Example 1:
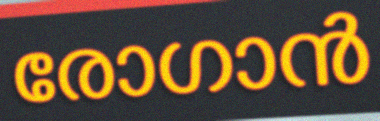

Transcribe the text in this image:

രോഗാൻ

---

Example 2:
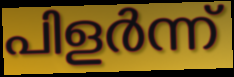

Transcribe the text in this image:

പിളർന്ന്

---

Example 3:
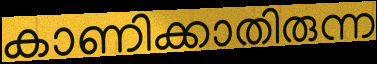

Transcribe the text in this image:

കാണിക്കാതിരുന്ന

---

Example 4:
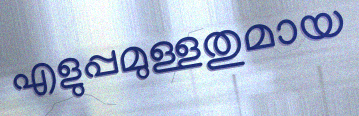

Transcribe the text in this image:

എളുപ്പമുള്ളതുമായ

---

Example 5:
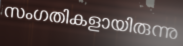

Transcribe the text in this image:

സംഗതികളായിരുന്നു